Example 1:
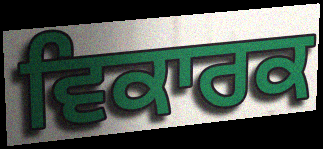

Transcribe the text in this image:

ਵਿਕਾਰਕ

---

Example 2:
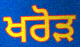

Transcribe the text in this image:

ਖਰੋੜ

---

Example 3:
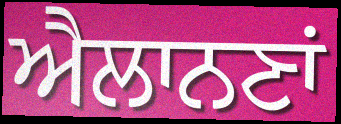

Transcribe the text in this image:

ਐਲਾਨਣਾਂ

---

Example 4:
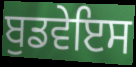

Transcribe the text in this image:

ਬੁਡਵੇਇਸ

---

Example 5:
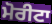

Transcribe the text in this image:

ਮੋਰੀਟਾ